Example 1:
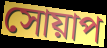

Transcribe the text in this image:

সোয়াপ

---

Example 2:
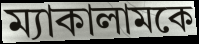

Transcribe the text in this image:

ম্যাকালামকে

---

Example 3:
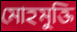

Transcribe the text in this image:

মোহমুক্তি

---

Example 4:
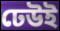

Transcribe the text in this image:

ঢেউই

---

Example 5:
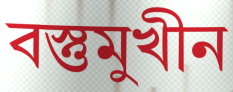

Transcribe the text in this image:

বস্তুমুখীন